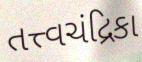
તત્ત્વચંદ્રિકા